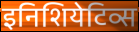
इनिशियेटिव्स